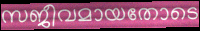
സജീവമായതോടെ